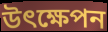
উৎক্ষেপন